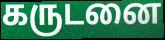
கருடனை